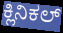
ಕ್ಲಿನಿಕಲ್